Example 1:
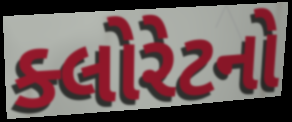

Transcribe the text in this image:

ક્લોરેટનો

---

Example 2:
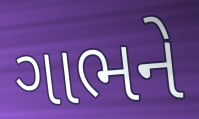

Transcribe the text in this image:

ગાભને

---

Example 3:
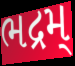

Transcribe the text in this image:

ભદ્રમ્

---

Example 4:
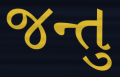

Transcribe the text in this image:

જન્તુ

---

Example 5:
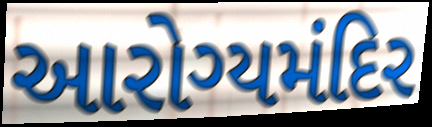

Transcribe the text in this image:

આરોગ્યમંદિર